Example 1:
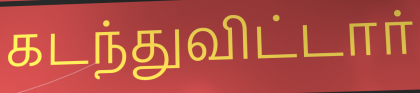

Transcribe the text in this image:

கடந்துவிட்டார்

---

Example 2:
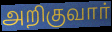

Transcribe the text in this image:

அறிகுவார்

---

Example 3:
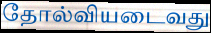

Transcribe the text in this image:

தோல்வியடைவது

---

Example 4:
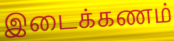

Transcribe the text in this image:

இடைக்கணம்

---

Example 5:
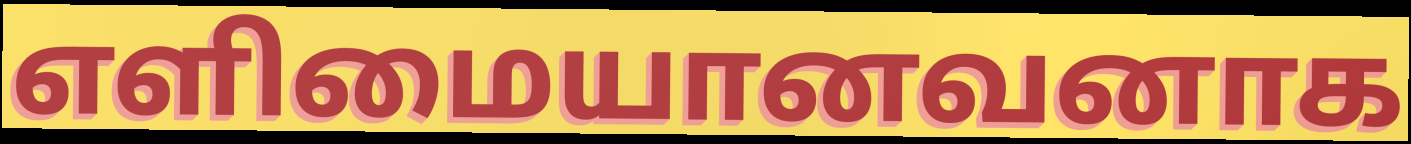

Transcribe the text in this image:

எளிமையானவனாக